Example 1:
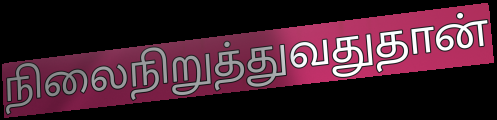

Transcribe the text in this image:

நிலைநிறுத்துவதுதான்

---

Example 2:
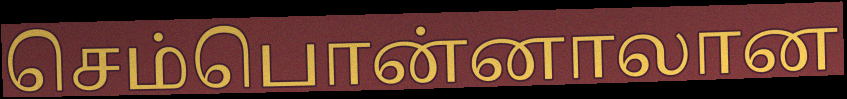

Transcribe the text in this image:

செம்பொன்னாலான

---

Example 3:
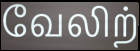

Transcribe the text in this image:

வேலிற்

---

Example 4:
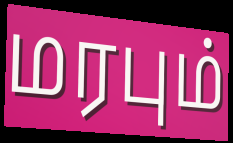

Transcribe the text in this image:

மரபும்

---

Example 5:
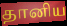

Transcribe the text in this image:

தானிய